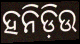
ହନିଡ଼ିଉ